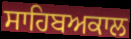
ਸਾਹਿਬਅਕਾਲ